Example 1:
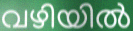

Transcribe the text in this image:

വഴിയിൽ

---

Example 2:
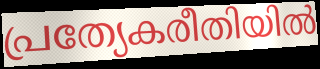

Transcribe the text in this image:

പ്രത്യേകരീതിയിൽ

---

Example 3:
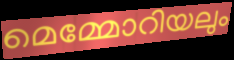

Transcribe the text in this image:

മെമ്മോറിയലും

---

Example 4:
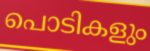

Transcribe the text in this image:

പൊടികളും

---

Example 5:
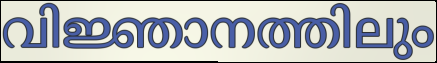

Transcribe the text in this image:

വിജ്ഞാനത്തിലും